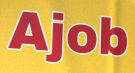
Ajob